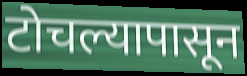
टोचल्यापासून